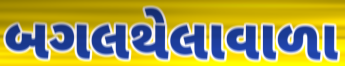
બગલથેલાવાળા